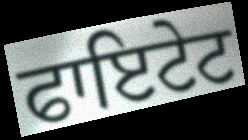
ਫਾਇਟੇਟ